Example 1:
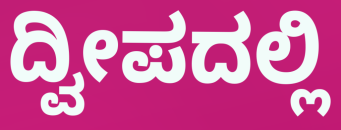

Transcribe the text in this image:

ದ್ವೀಪದಲ್ಲಿ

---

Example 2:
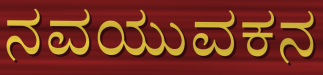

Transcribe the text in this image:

ನವಯುವಕನ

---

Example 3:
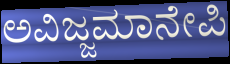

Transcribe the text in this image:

ಅವಿಜ್ಜಮಾನೇಪಿ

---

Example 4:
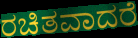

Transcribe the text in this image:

ರಚಿತವಾದರೆ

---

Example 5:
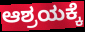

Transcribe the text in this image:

ಆಶ್ರಯಕ್ಕೆ